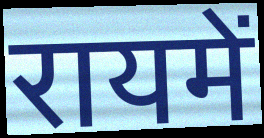
रायमें